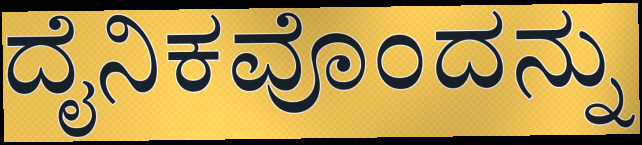
ದೈನಿಕವೊಂದನ್ನು